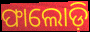
ଫାଲୋଡ଼ି